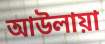
আউলায়া